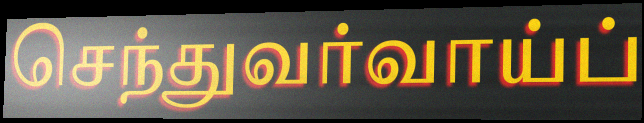
செந்துவர்வாய்ப்